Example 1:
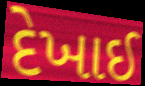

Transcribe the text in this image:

દેખાઈ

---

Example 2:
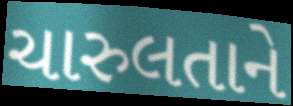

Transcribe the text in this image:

ચારુલતાને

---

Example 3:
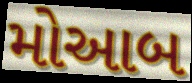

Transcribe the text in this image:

મોઆબ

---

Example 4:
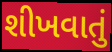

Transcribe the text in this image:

શીખવાતું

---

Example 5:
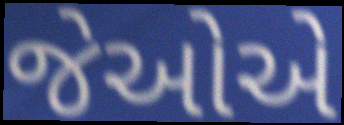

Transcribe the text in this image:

જેઓએ